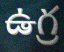
ఉగ్ర